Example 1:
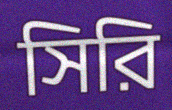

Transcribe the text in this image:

সিরি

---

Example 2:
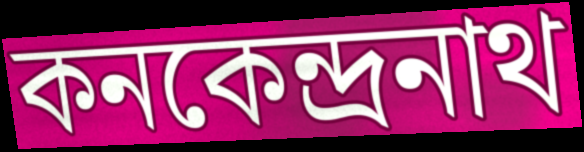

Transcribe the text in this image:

কনকেন্দ্রনাথ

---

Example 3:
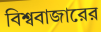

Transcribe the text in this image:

বিশ্ববাজারের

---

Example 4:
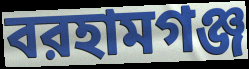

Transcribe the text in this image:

বরহামগঞ্জ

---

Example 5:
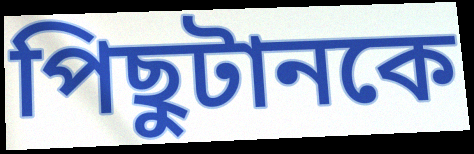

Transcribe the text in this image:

পিছুটানকে